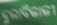
ବୁଲାବିକାଳୀ